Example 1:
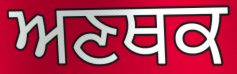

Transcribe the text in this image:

ਅਣਥਕ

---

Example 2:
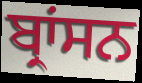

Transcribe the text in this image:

ਬ੍ਰਾਂਸਨ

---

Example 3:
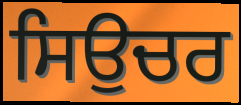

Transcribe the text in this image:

ਸਿਉਚਰ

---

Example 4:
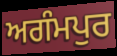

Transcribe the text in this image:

ਅਗੰਮਪੁਰ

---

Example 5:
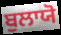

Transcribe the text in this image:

ਬੁਲਾਯੋ